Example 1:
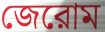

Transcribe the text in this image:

জেরোম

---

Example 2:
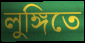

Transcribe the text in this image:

লুঙ্গিতে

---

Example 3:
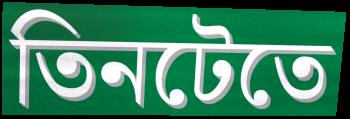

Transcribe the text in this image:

তিনটেতে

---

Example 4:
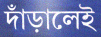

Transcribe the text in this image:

দাঁড়ালেই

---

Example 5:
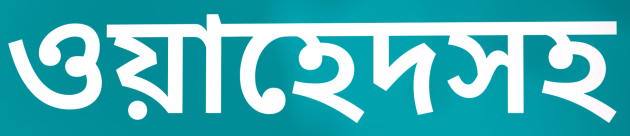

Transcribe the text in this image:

ওয়াহেদসহ